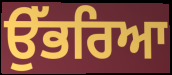
ਉੱਭਰਿਆ